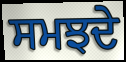
ਸਮਝਦੇ